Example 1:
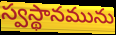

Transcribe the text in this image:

స్వస్థానమును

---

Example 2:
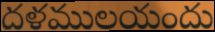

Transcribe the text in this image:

దళములయందు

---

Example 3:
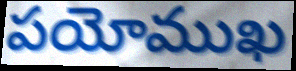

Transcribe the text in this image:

పయోముఖ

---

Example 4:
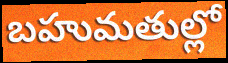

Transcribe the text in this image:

బహుమతుల్లో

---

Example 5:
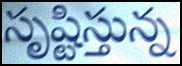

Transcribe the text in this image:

సృష్టిస్తున్న